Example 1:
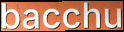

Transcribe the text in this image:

bacchu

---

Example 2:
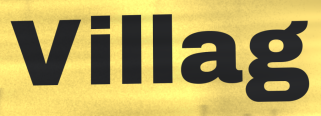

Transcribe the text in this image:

Villag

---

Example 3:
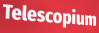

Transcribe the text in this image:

Telescopium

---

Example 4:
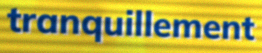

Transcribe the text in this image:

tranquillement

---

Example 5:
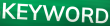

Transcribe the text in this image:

KEYWORD